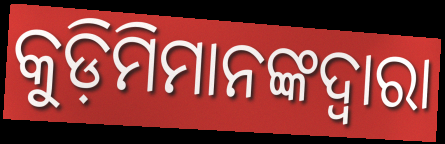
କୁଡ଼ିମିମାନଙ୍କଦ୍ୱାରା